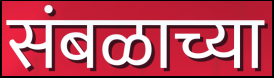
संबळाच्या